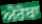
ਐਰੋਬਾ